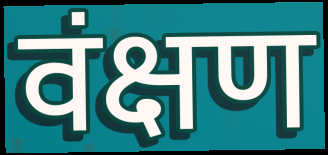
वंक्षण